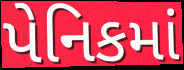
પેનિકમાં